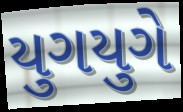
યુગયુગે